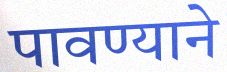
पावण्याने